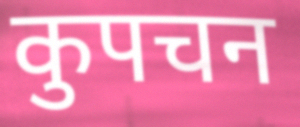
कुपचन